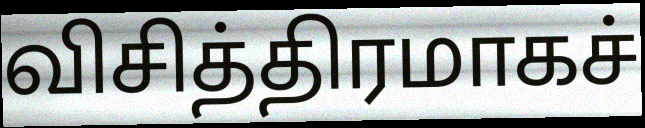
விசித்திரமாகச்